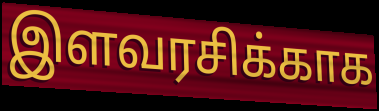
இளவரசிக்காக